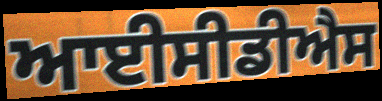
ਆਈਸੀਡੀਐਸ